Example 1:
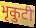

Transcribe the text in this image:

भृकुटी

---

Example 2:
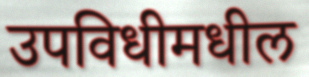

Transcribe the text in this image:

उपविधीमधील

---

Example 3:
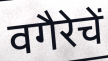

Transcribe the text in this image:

वगैरेचें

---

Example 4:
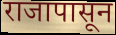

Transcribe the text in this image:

राजापासून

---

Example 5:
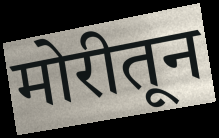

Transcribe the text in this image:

मोरीतून